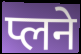
प्लने